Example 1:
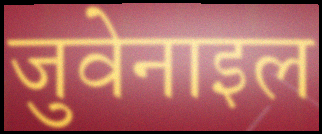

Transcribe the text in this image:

जुवेनाइल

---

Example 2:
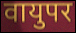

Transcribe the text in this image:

वायुपर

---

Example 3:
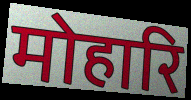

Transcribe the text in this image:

मोहारि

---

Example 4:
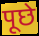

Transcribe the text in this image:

पूछे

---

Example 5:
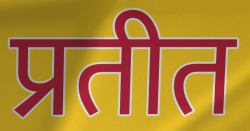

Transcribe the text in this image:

प्रतीत